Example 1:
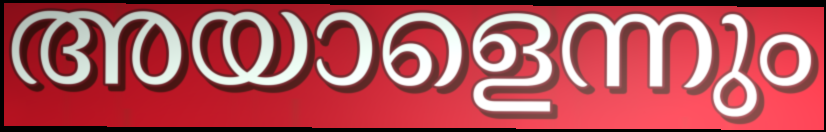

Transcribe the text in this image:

അയാളെന്നും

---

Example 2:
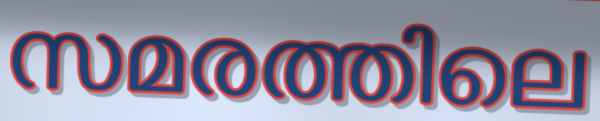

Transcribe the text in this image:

സമരത്തിലെ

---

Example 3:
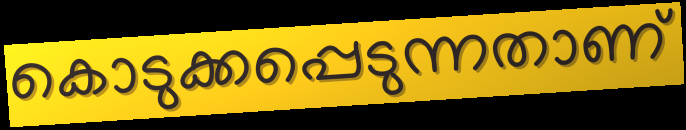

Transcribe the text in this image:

കൊടുക്കപ്പെടുന്നതാണ്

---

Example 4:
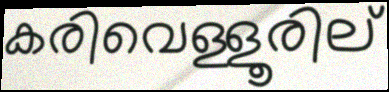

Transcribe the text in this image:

കരിവെള്ളൂരില്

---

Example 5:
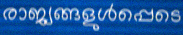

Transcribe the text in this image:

രാജ്യങ്ങളുൾപ്പെടെ